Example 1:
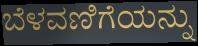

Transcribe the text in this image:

ಬೆಳವಣಿಗೆಯನ್ನು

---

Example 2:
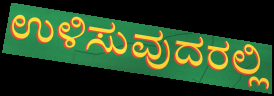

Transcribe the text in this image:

ಉಳಿಸುವುದರಲ್ಲಿ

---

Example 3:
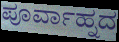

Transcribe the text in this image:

ಪೂರ್ವಾಹ್ನದ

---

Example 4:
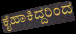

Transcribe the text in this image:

ಕೈಹಾಕಿದ್ದರಿಂದ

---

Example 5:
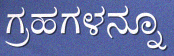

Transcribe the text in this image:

ಗ್ರಹಗಳನ್ನೂ